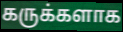
கருக்களாக